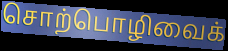
சொற்பொழிவைக்